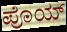
ಪೊಯ್